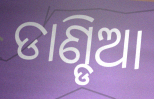
ଡାଣ୍ଡିଆ